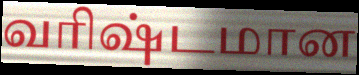
வரிஷ்டமான